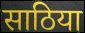
साठिया